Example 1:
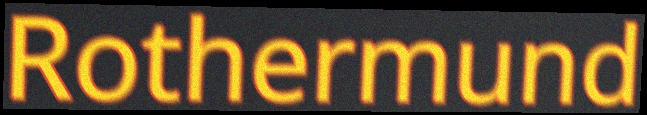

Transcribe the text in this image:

Rothermund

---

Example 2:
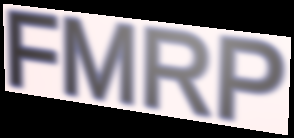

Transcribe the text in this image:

FMRP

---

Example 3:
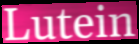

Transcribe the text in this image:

Lutein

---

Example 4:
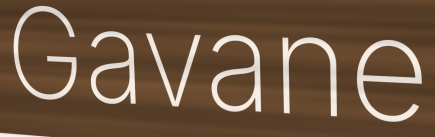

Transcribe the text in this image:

Gavane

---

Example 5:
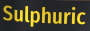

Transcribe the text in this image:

Sulphuric